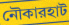
নৌকারহাট